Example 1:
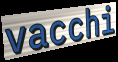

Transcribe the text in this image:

vacchi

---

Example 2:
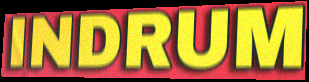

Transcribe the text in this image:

INDRUM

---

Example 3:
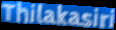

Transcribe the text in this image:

Thilakasiri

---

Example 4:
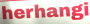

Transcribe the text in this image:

herhangi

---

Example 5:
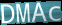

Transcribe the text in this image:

DMAc